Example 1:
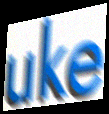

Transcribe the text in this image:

uke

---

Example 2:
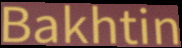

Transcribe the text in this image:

Bakhtin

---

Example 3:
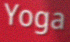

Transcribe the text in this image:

Yoga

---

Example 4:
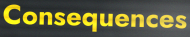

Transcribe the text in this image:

Consequences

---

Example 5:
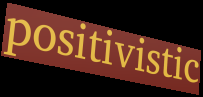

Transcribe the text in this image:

positivistic